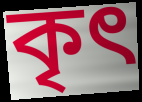
কৃৎ